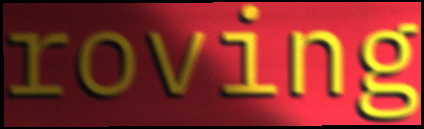
roving